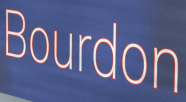
Bourdon